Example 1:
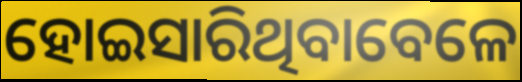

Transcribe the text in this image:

ହୋଇସାରିଥିବାବେଳେ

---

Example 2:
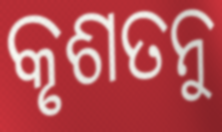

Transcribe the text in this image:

କୃଶତନୁ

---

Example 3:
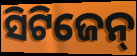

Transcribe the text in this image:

ସିଟିଜେନ୍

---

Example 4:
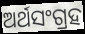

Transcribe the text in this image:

ଅର୍ଥସଂଗ୍ରହ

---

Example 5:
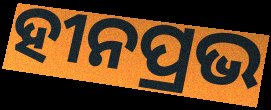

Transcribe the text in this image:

ହୀନପ୍ରଭ